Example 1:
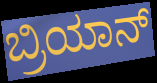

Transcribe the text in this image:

ಬ್ರಿಯಾನ್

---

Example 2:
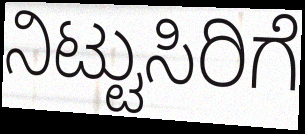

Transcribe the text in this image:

ನಿಟ್ಟುಸಿರಿಗೆ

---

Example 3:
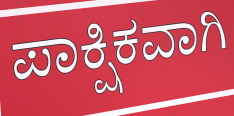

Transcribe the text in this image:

ಪಾಕ್ಷಿಕವಾಗಿ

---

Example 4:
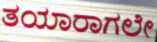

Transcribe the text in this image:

ತಯಾರಾಗಲೇ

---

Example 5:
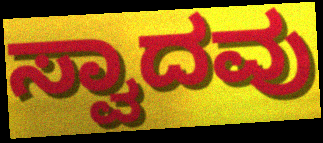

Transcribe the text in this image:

ಸ್ವಾದವು